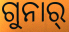
ଗୁନାର୍